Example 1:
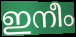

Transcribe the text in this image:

ഇനീം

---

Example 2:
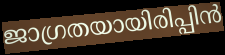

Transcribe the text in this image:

ജാഗ്രതയായിരിപ്പിൻ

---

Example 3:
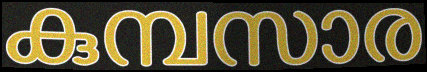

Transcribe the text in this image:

കുമ്പസാര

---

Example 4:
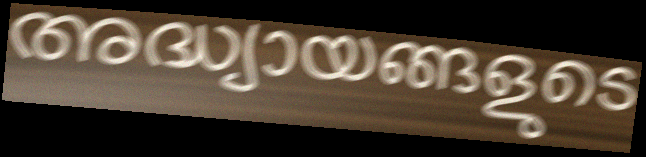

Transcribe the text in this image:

അദ്ധ്യായങ്ങളുടെ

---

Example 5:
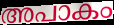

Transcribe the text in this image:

അപാകം